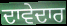
ਦਾਵੇਦਾਰ